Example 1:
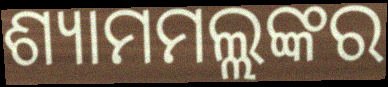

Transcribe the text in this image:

ଶ୍ୟାମମଲ୍ଲଙ୍କର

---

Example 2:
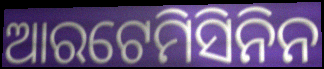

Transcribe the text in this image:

ଆରଟେମିସିନିନ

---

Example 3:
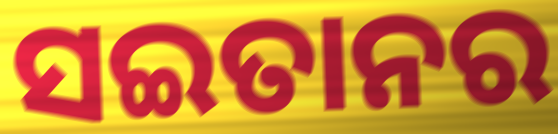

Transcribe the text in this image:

ସଇତାନର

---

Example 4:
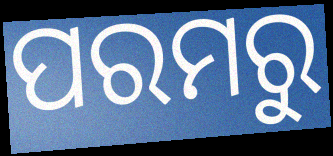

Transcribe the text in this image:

ପରମରୁ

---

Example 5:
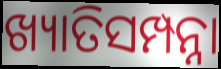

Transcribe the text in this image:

ଖ୍ୟାତିସମ୍ପନ୍ନା